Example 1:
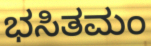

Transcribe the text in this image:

ಭಸಿತಮಂ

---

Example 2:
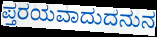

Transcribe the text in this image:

ಪ್ತರಯವಾದುದನುನ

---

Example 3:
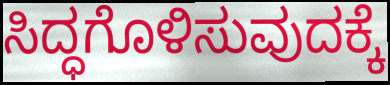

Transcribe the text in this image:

ಸಿದ್ಧಗೊಳಿಸುವುದಕ್ಕೆ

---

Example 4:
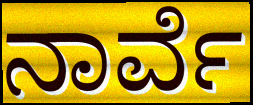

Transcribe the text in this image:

ನಾರ್ವೆ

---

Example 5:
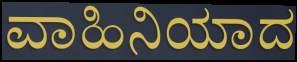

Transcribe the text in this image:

ವಾಹಿನಿಯಾದ